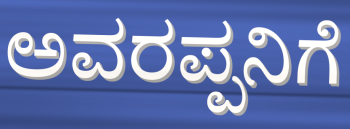
ಅವರಪ್ಪನಿಗೆ